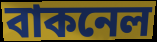
বাকনেল